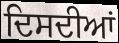
ਦਿਸਦੀਆਂ